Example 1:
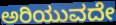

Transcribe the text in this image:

ಅರಿಯುವದೇ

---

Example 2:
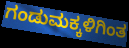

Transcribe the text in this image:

ಗಂಡುಮಕ್ಕಳಿಗಿಂತ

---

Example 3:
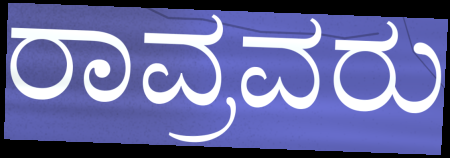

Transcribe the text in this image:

ರಾವ್ರವರು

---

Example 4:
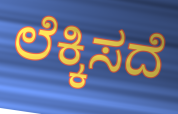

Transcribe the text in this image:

ಲೆಕ್ಕಿಸದೆ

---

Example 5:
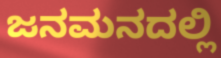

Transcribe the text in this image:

ಜನಮನದಲ್ಲಿ